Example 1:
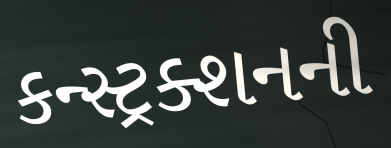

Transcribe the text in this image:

કન્સ્ટ્રક્શનની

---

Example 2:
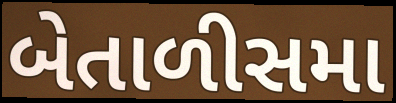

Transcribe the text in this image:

બેતાળીસમા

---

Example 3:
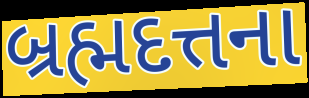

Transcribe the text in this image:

બ્રહ્મદત્તના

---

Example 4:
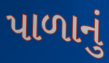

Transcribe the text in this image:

પાળાનું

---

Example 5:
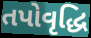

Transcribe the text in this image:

તપોવૃદ્ધિ